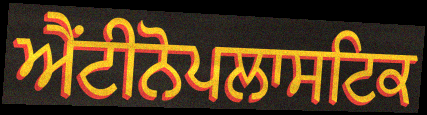
ਐਂਟੀਨੋਪਲਾਸਟਿਕ